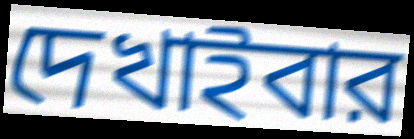
দেখাইবার